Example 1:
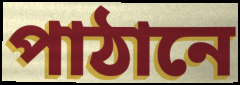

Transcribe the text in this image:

পাঠানে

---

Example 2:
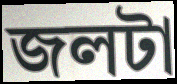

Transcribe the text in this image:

জলটা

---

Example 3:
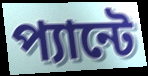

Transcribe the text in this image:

প্যান্টে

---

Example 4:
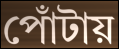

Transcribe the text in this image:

পোঁটায়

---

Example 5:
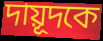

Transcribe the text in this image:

দায়ূদকে